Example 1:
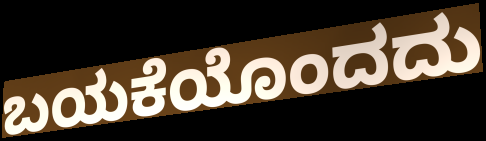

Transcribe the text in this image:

ಬಯಕೆಯೊಂದದು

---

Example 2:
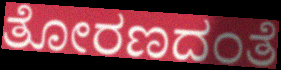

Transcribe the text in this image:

ತೋರಣದಂತೆ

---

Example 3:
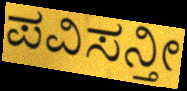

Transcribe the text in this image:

ಪವಿಸನ್ತೀ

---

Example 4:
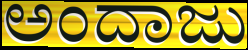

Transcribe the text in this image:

ಅಂದಾಜು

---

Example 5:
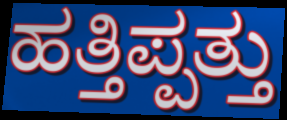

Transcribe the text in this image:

ಹತ್ತಿಪ್ಪತ್ತು